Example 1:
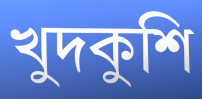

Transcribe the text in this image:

খুদকুশি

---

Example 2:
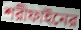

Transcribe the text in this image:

শরীফাইনের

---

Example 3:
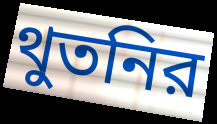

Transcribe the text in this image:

থুতনির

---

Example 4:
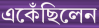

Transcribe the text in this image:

একেঁছিলেন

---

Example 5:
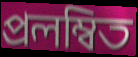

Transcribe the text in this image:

প্রলম্বিত